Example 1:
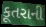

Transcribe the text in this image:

કૂતરાની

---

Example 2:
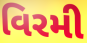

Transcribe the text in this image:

વિરમી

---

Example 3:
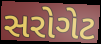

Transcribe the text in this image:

સરોગેટ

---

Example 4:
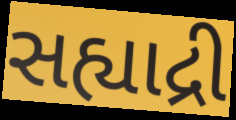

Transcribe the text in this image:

સહ્યાદ્રી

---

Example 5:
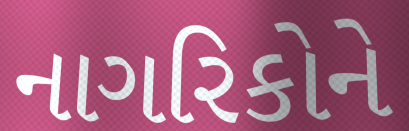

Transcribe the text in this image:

નાગરિકોને